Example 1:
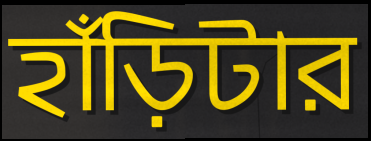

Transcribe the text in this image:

হাঁড়িটার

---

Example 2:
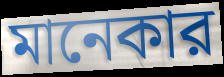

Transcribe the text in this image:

মানেকার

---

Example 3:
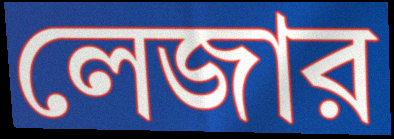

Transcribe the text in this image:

লেজার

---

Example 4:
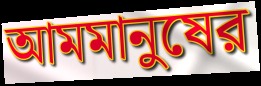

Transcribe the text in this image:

আমমানুষের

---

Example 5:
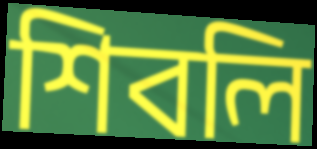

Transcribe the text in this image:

শিবলি